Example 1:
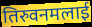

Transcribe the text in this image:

तिरुवनमलाई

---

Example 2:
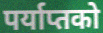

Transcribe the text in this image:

पर्याप्तको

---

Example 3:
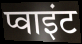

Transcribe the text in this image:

प्वाइंट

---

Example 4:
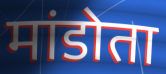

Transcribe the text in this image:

मांडोता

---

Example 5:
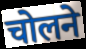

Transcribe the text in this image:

चोलने